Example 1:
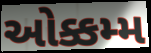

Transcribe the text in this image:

ઓક્કમ્મ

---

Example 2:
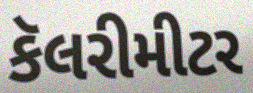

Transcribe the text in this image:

કૅલરીમીટર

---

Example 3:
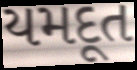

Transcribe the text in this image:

યમદૂત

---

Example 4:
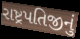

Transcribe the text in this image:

રાષ્ટ્રપતિજીનું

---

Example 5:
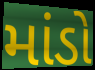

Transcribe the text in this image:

માંડો